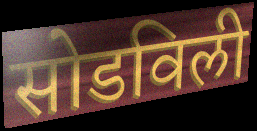
सोडविली